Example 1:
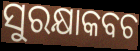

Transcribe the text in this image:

ସୁରକ୍ଷାକବଚ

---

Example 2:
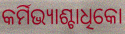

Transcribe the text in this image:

କର୍ମିଭ୍ୟାଶ୍ଚାଧିକୋ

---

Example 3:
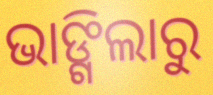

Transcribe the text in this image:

ଭାଙ୍ଗିଲାରୁ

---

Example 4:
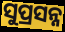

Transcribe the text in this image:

ସୁପ୍ରସନ୍ନ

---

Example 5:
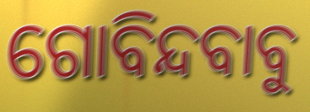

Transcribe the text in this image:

ଗୋବିନ୍ଦବାବୁ